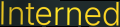
Interned